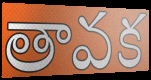
తావక